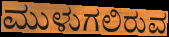
ಮುಳುಗಲಿರುವ